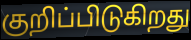
குறிப்பிடுகிறது